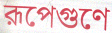
রূপেগুণে